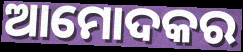
ଆମୋଦକର